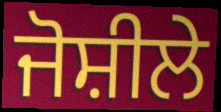
ਜੋਸ਼ੀਲੇ